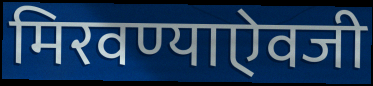
मिरवण्याऐवजी